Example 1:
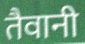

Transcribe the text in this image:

तैवानी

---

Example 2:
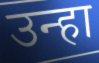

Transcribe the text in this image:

उन्हा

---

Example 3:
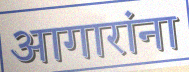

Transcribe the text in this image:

आगारांना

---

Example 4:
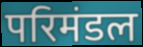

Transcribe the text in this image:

परिमंडल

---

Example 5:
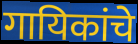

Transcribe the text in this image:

गायिकांचे